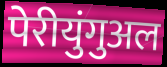
पेरीयुंगुअल